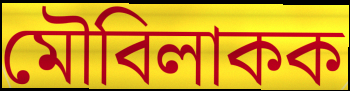
মৌবিলাকক